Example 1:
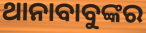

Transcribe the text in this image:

ଥାନାବାବୁଙ୍କର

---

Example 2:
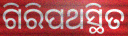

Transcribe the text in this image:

ଗିରିପଥସ୍ଥିତ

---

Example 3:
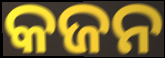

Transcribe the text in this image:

କଜନ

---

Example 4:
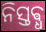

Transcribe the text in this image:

ନିସ୍ତଵ୍ଧ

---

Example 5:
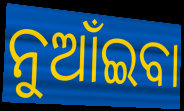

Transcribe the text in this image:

ନୁଆଁଇବା